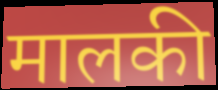
मालकी